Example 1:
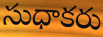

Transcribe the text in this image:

సుధాకరు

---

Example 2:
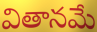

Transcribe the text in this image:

వితానమే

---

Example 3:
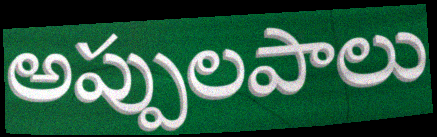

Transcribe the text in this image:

అప్పులపాలు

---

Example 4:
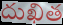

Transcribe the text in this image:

దుఖిత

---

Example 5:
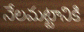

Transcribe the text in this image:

నేలమట్టానికి